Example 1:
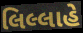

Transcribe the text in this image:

લિલ્લાહે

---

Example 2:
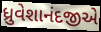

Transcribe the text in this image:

ધ્રુવેશાનંદજીએ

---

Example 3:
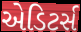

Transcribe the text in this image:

એડિટર્સ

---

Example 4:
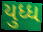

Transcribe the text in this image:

યુધ્ધ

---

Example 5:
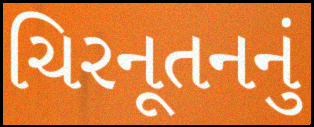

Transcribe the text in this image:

ચિરનૂતનનું